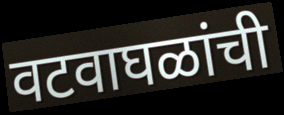
वटवाघळांची